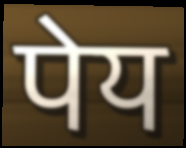
पेय